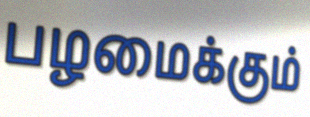
பழமைக்கும்